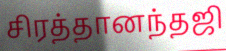
சிரத்தானந்தஜி